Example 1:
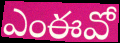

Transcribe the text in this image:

ఎంఈవో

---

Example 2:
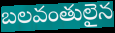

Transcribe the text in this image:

బలవంతులైన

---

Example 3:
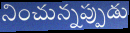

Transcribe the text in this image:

నించున్నప్పుడు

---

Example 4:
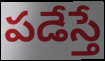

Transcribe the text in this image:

పడేస్తే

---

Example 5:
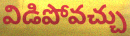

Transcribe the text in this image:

విడిపోవచ్చు